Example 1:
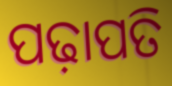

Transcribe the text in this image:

ପଢ଼ାପତି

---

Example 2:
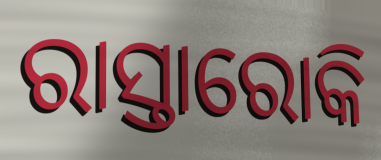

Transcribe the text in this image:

ରାସ୍ତାରୋକି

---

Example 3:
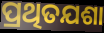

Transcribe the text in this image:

ପ୍ରଥିତଯଶା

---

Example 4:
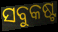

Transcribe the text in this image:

ସବୁକଷ୍ଟ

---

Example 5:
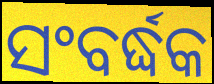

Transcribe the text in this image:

ସଂବର୍ଦ୍ଧକ